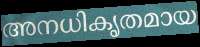
അനധികൃതമായ